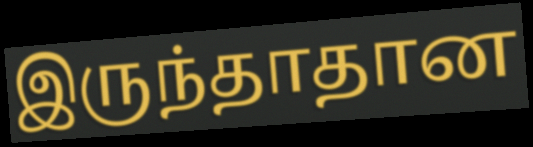
இருந்தாதான